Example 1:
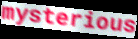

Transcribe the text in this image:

mysterious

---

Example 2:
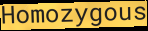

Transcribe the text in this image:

Homozygous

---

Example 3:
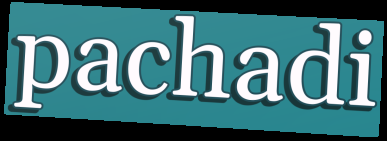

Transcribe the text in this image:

pachadi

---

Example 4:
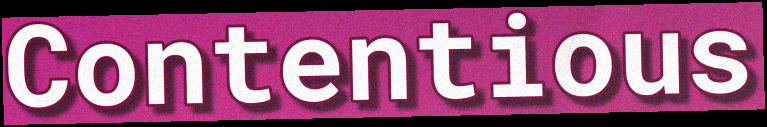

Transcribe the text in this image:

Contentious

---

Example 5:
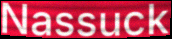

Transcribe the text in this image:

Nassuck